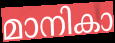
മാനികാ